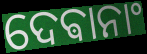
ଦେଵାନାଂ